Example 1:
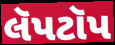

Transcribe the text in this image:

લૅપટૉપ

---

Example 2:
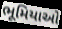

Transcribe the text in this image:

ભૂમિયાઓ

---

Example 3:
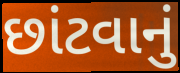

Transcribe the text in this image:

છાંટવાનું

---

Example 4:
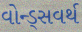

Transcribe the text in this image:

વોન્ડ્સવર્થ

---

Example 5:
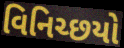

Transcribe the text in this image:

વિનિચ્છયો